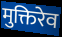
मुक्तिरेव